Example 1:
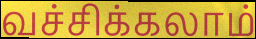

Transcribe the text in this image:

வச்சிக்கலாம்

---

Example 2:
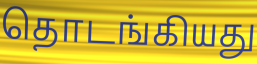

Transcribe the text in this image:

தொடங்கியது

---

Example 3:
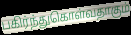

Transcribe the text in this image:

பகிர்ந்துகொள்வதாகும்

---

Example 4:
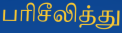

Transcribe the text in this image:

பரிசீலித்து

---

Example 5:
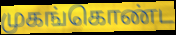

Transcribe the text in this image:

முகங்கொண்ட